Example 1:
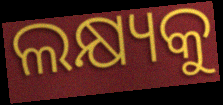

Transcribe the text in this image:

ଲକ୍ଷ୍ୟକୁ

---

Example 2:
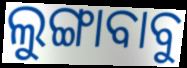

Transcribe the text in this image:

ଲୁଙ୍ଗାବାବୁ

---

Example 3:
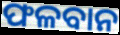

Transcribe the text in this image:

ଫଳବାନ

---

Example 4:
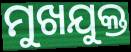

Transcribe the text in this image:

ମୁଖଯୁକ୍ତ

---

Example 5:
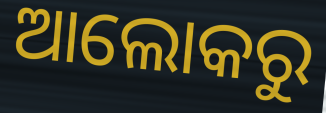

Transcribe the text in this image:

ଆଲୋକରୁ